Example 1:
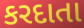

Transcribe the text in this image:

કરદાતા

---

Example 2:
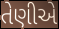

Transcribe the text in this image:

તેણીએ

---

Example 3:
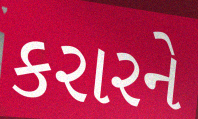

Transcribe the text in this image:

કરારને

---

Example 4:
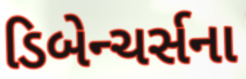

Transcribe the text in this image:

ડિબેન્ચર્સના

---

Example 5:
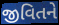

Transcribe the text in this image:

જીવિતને